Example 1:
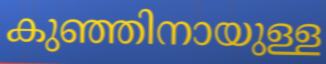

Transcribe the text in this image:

കുഞ്ഞിനായുള്ള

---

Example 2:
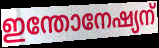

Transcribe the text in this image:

ഇന്തോനേഷ്യന്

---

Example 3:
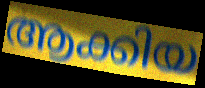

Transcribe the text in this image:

ആക്കിയ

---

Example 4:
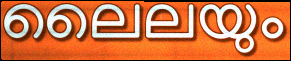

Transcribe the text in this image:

ലൈലയും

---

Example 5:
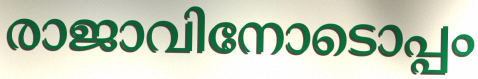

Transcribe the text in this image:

രാജാവിനോടൊപ്പം